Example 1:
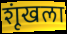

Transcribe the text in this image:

श्रृंखला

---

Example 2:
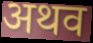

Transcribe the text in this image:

अथव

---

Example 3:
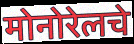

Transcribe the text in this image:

मोनोरेलचे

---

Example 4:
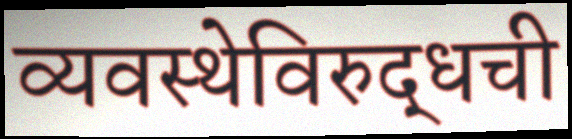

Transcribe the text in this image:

व्यवस्थेविरुद्धची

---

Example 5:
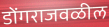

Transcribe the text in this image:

डोंगराजवळील